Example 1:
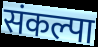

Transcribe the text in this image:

संकल्पा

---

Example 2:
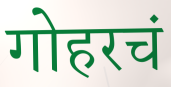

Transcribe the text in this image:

गोहरचं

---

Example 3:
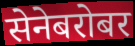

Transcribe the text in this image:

सेनेबरोबर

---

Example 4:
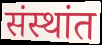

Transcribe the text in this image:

संस्थांत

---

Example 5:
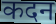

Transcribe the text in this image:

कदन